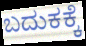
ಬದುಕಕ್ಕೆ